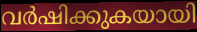
വർഷിക്കുകയായി